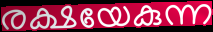
രക്ഷയേകുന്ന